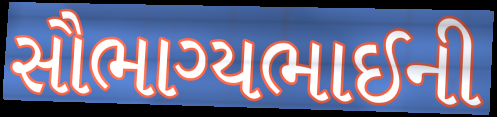
સૌભાગ્યભાઈની